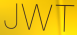
JWT